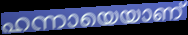
ഹന്നായെയാണ്